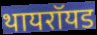
थायरॉयड